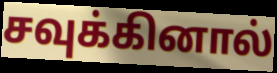
சவுக்கினால்